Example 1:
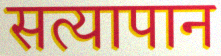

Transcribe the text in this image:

सत्यापान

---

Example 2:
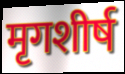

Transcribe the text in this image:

मृगशीर्ष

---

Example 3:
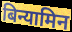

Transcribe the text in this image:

बिन्यामिन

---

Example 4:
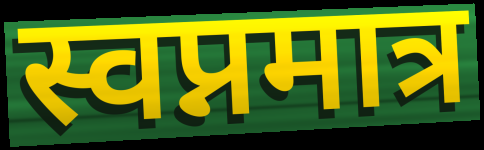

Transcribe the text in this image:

स्वप्नमात्र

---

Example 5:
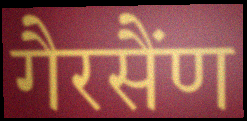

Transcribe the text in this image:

गैरसैंण